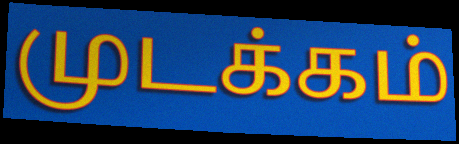
முடக்கம்